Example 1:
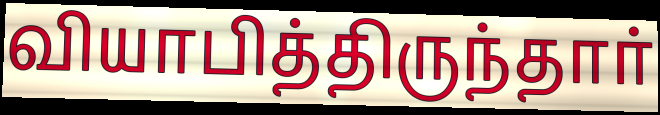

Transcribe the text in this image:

வியாபித்திருந்தார்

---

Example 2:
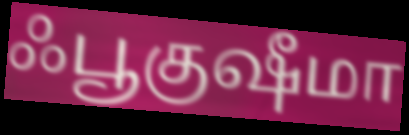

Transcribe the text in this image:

ஃபூகுஷீமா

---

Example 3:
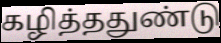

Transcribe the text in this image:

கழித்ததுண்டு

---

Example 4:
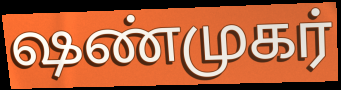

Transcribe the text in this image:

ஷண்முகர்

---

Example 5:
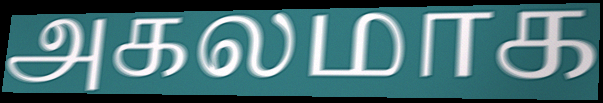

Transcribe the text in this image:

அகலமாக